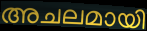
അചലമായി